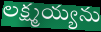
లక్ష్మయ్యను